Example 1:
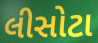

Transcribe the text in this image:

લીસોટા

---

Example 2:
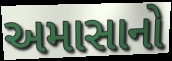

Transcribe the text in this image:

અમાસાનો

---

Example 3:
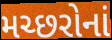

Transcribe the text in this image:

મચ્છરોનાં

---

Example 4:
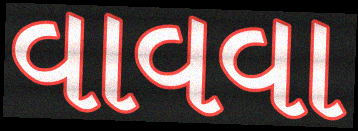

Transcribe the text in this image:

વાવવા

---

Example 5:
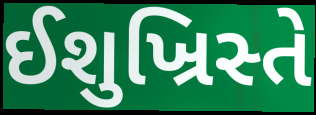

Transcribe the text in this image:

ઈશુખ્રિસ્તે